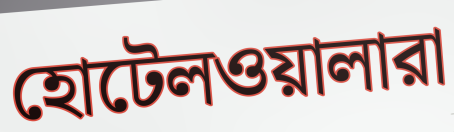
হোটেলওয়ালারা